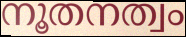
നൂതനത്വം